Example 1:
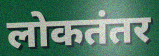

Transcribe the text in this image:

लोकतंतर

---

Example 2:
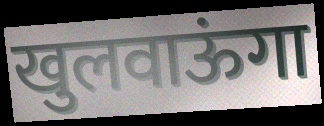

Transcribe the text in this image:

खुलवाऊंगा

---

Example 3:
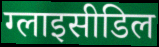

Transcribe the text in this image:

ग्लाइसीडिल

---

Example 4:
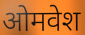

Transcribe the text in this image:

ओमवेश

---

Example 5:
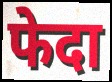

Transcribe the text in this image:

फेदा